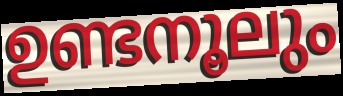
ഉണ്ടനൂലും